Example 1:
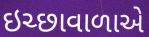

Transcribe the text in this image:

ઇચ્છાવાળાએ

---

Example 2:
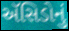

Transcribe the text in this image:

ઍસિડોનું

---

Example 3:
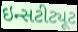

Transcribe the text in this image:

ઇન્સટીટ્યૂટ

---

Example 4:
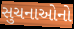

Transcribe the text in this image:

સુચનાઓનો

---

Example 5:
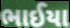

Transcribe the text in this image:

ભાઈયા